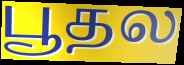
பூதல